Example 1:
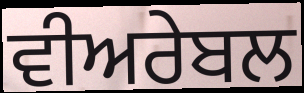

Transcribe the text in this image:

ਵੀਅਰੇਬਲ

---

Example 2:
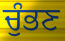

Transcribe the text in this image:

ਚੁੰਭਣ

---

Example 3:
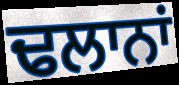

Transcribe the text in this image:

ਢਲਾਨਾਂ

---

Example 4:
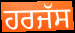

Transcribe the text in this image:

ਹਰਜੱਸ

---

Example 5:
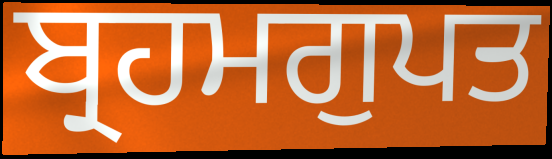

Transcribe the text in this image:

ਬ੍ਰਹਮਗੁਪਤ